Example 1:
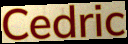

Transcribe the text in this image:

Cedric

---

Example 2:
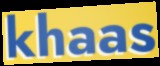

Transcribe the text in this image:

khaas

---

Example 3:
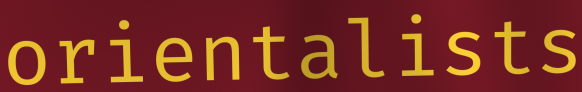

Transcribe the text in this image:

orientalists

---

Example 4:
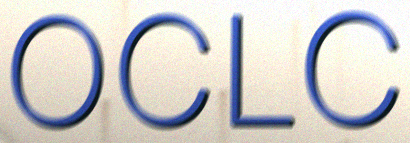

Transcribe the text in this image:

OCLC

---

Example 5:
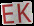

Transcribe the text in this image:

EK